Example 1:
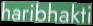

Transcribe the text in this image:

haribhakti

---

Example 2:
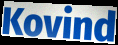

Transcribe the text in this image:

Kovind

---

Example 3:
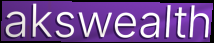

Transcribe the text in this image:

akswealth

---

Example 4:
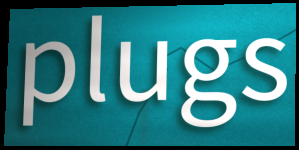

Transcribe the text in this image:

plugs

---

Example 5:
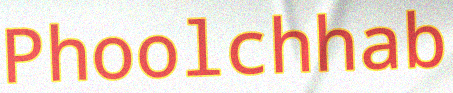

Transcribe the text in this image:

Phoolchhab